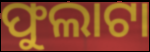
ଫୁଲାଟା